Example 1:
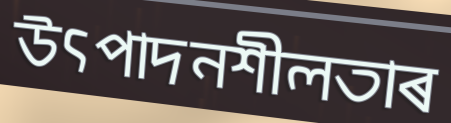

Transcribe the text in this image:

উৎপাদনশীলতাৰ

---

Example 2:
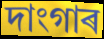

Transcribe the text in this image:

দাংগাৰ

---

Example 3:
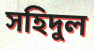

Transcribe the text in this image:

সহিদুল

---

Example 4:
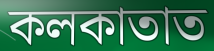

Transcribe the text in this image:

কলকাতাত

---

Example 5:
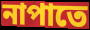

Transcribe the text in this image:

নাপাতে